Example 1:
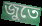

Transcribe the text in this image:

জুতে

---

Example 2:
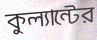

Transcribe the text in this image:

কুল্যান্টের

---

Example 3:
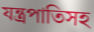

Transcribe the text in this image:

যন্ত্রপাতিসহ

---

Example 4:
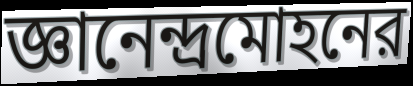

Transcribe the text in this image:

জ্ঞানেন্দ্রমোহনের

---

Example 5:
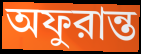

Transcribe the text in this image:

অফুরান্ত